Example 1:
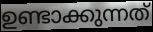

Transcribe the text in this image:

ഉണ്ടാക്കുന്നത്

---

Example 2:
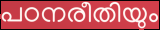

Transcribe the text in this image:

പഠനരീതിയും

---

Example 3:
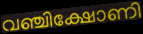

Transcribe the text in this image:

വഞ്ചിക്ഷോണി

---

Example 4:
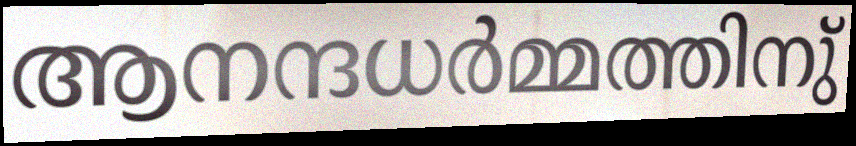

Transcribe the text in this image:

ആനന്ദധർമ്മത്തിനു്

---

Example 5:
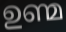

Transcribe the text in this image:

ഉണ്മ